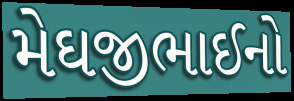
મેઘજીભાઈનો